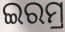
ଇରମ୍ର